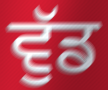
ਵੁੱਡ